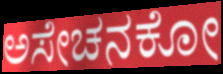
ಅಸೇಚನಕೋ